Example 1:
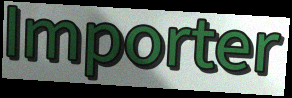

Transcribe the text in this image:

Importer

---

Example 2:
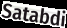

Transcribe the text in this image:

Satabdi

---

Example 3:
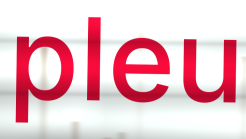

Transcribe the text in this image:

pleu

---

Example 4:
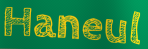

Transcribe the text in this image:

Haneul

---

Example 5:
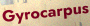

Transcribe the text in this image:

Gyrocarpus